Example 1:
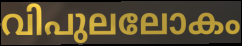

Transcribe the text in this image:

വിപുലലോകം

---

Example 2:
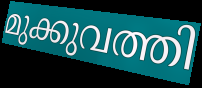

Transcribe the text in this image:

മുക്കുവത്തി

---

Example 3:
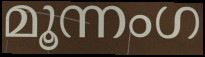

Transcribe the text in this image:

മൂന്നംഗ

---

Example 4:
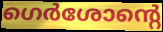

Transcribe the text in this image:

ഗെർശോന്റെ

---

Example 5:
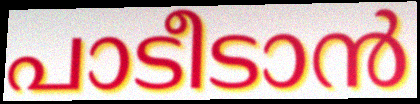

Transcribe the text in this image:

പാടീടാൻ